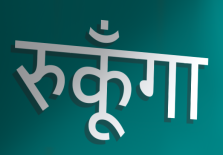
रुकूँगा